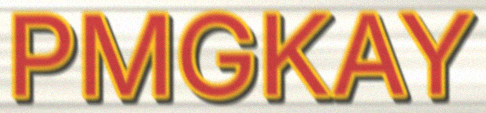
PMGKAY